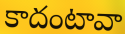
కాదంటావా